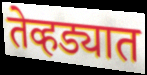
तेव्हड्यात